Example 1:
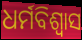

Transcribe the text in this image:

ଧର୍ମବିଶ୍ବାସ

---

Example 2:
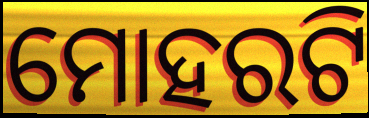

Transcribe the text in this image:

ମୋହରଟି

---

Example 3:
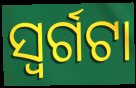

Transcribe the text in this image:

ସ୍ୱର୍ଗଟା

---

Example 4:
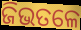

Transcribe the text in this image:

ଜିଭତଳେ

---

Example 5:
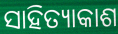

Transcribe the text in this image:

ସାହିତ୍ୟାକାଶ